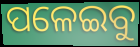
ପଳେଇବୁ